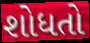
શોધતો